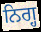
ਨਿਗ੍ਹ